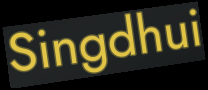
Singdhui